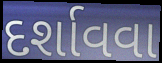
દર્શાવવા